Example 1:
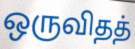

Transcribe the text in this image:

ஒருவிதத்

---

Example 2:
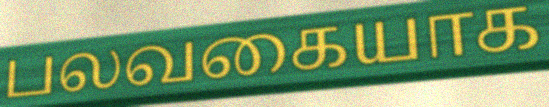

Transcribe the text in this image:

பலவகையாக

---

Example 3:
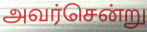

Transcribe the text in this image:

அவர்சென்று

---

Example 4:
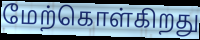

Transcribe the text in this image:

மேற்கொள்கிறது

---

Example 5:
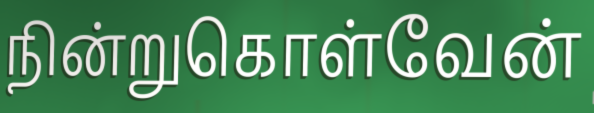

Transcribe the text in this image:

நின்றுகொள்வேன்